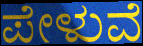
ಪೇಳುವೆ